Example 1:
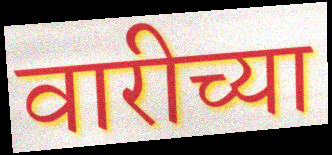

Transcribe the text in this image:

वारीच्या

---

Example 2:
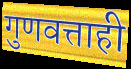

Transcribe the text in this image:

गुणवत्ताही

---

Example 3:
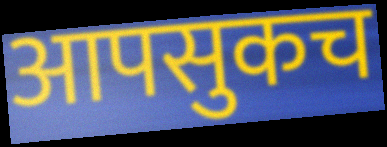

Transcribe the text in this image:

आपसुकच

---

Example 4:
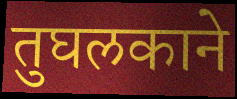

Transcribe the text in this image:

तुघलकाने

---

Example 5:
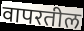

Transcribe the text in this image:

वापरतील